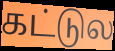
கட்டுல